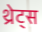
थ्रेट्स